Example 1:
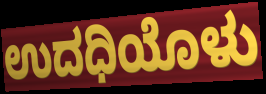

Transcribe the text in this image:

ಉದಧಿಯೊಳು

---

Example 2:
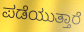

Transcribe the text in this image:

ಪಡೆಯುತ್ತಾರೆ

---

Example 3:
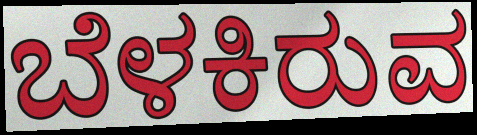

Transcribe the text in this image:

ಬೆಳಕಿರುವ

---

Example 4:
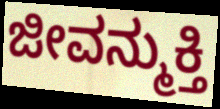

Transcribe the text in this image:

ಜೀವನ್ಮುಕ್ತಿ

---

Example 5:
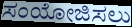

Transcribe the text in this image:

ಸಂಯೋಜಿಸಲು